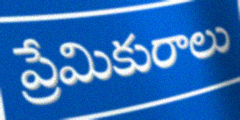
ప్రేమికురాలు